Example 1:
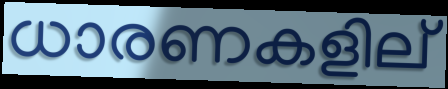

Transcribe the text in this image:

ധാരണകളില്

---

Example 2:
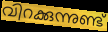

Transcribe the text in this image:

വിറക്കുന്നുണ്ട്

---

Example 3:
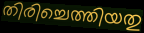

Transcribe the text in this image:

തിരിച്ചെത്തിയതു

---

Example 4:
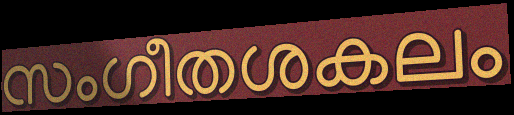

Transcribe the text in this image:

സംഗീതശകലം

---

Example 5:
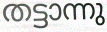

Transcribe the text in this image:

തട്ടാന്നു